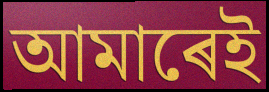
আমাৰেই